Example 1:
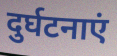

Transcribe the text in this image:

दुर्घटनाएं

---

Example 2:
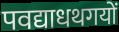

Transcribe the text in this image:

पवद्याधथगयों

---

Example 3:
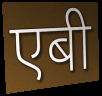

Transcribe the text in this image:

एबी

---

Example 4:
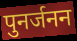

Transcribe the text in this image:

पुनर्जनन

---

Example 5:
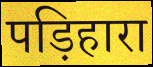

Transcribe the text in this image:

पड़िहारा